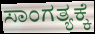
ಸಾಂಗತ್ಯಕ್ಕೆ